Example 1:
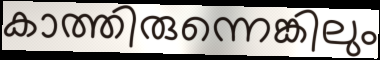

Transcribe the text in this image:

കാത്തിരുന്നെങ്കിലും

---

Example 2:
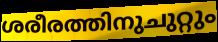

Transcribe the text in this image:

ശരീരത്തിനുചുറ്റും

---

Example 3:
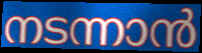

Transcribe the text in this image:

നടന്നാൻ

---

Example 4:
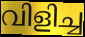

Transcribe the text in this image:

വിളിച്ച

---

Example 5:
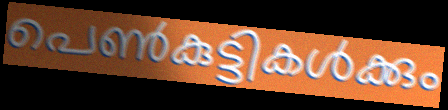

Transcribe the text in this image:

പെൺകുട്ടികൾക്കും